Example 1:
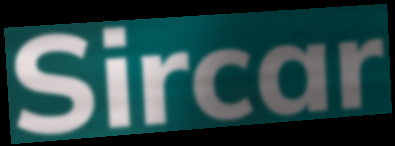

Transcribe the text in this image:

Sircar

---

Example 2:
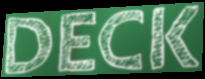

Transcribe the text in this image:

DECK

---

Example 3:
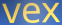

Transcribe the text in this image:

vex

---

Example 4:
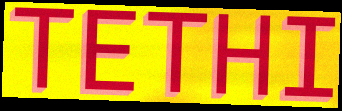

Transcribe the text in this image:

TETHI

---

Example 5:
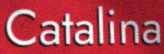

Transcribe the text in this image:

Catalina